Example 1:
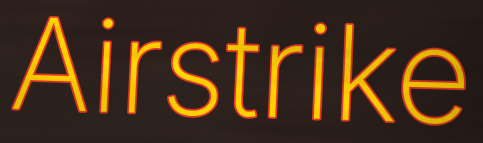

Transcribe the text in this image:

Airstrike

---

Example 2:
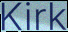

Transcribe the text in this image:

Kirk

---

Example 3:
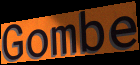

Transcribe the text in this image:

Gombe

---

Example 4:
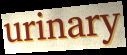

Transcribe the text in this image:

urinary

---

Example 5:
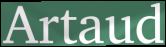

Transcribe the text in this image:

Artaud